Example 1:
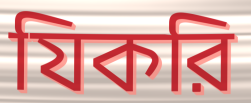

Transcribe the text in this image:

যিকরি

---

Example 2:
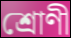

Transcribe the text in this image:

শ্রোণী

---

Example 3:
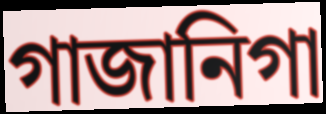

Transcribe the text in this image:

গাজানিগা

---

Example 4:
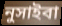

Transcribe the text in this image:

নুসাইবা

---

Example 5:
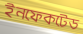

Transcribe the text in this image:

ইনফেকটেড